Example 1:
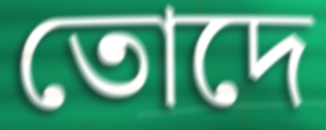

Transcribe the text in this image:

তোদে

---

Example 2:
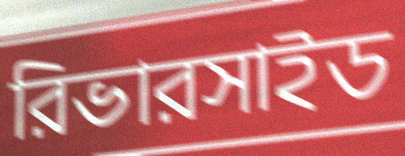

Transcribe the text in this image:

রিভারসাইড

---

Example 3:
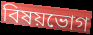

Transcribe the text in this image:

বিষয়ভোগ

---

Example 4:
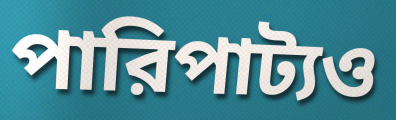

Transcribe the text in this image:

পারিপাট্যও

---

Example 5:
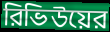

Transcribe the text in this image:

রিভিউয়ের